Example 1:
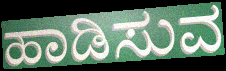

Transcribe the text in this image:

ಹಾಡಿಸುವ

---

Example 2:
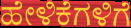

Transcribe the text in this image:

ಹೇಳಿಕೆಗಳಿಗೆ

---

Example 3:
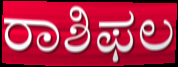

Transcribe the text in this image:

ರಾಶಿಫಲ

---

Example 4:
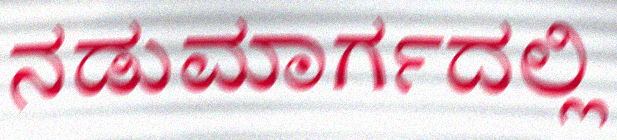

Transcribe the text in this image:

ನಡುಮಾರ್ಗದಲ್ಲಿ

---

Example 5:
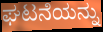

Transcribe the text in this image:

ಘಟನೆಯನ್ನು